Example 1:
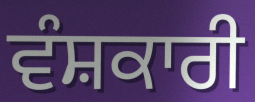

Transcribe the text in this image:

ਵੰਸ਼ਕਾਰੀ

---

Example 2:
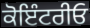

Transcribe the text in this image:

ਕੋਇੰਟਰੀਓ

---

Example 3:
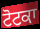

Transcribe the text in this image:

ਟੋਟਕਾ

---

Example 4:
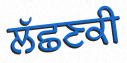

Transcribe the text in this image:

ਲੱਛਣਕੀ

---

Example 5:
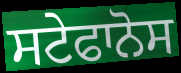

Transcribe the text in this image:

ਸਟੇਫਾਨੋਸ